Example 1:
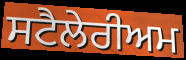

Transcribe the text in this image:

ਸਟੈਲੇਰੀਅਮ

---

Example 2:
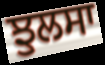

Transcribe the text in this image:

ਝੁਲਸਾ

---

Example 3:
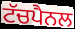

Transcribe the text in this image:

ਟੱਚਪੈਨਲ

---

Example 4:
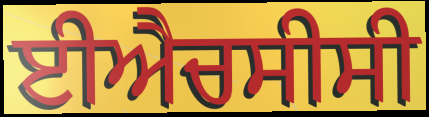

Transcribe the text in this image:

ਈਐਚਸੀਸੀ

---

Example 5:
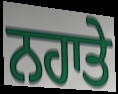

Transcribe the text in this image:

ਨਹਾਤੇ